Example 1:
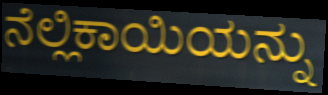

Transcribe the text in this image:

ನೆಲ್ಲಿಕಾಯಿಯನ್ನು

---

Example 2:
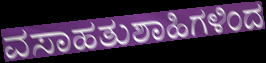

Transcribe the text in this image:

ವಸಾಹತುಶಾಹಿಗಳಿಂದ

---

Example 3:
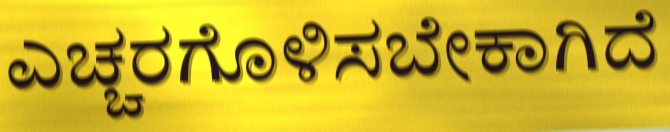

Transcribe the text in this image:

ಎಚ್ಚರಗೊಳಿಸಬೇಕಾಗಿದೆ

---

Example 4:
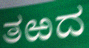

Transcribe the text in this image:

ತಱದ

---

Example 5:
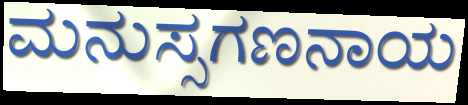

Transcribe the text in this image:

ಮನುಸ್ಸಗಣನಾಯ